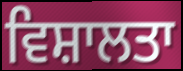
ਵਿਸ਼ਾਲਤਾ